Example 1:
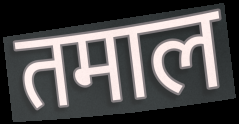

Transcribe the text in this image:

तमाल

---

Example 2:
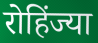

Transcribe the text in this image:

रोहिंज्या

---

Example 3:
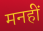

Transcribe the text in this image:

मनहीं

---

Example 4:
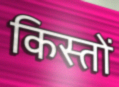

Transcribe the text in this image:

किस्तों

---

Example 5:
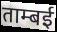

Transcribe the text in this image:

ताम्बई